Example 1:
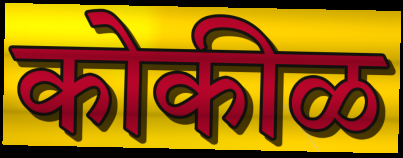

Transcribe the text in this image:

कोकीळ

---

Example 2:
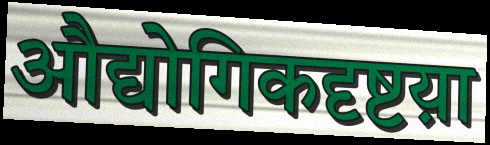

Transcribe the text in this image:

औद्योगिकदृष्टय़ा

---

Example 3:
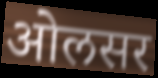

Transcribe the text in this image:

ओलसर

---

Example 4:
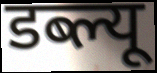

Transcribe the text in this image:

डब्ल्यू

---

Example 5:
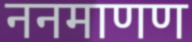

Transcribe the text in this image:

ननमाणण